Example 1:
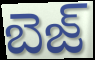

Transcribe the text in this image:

బెజ్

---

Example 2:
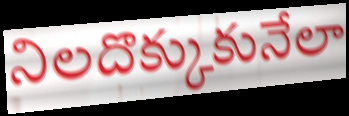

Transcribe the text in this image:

నిలదొక్కుకునేలా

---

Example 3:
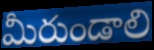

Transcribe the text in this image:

మీరుండాలి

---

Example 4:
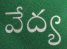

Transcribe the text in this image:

వేద్య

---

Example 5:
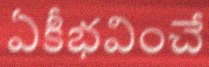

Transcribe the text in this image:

ఏకీభవించే